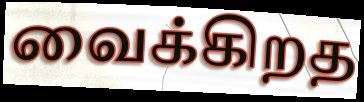
வைக்கிறத